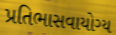
પ્રતિભાસવાયોગ્ય